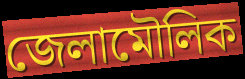
জেলামৌলিক